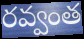
రవ్వంత